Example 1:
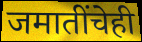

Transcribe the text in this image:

जमातींचेही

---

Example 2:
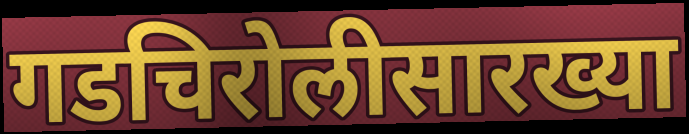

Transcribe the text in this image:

गडचिरोलीसारख्या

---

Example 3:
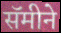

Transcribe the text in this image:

सॅमीने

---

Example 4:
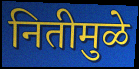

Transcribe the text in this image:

नितीमुळे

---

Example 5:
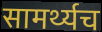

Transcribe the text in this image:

सामर्थ्यच